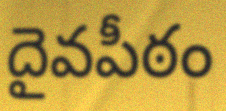
దైవపీఠం